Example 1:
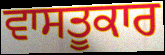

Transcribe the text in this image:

ਵਾਸਤੂਕਾਰ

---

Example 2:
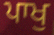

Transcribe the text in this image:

ਪਾਖੁ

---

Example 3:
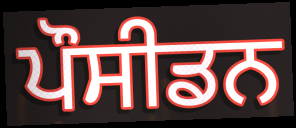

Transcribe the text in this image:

ਪੌਸੀਡਨ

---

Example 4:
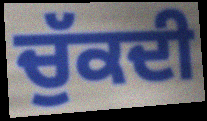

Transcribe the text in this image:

ਚੁੱਕਦੀ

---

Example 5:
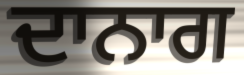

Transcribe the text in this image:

ਦਾਨਾਗ